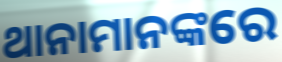
ଥାନାମାନଙ୍କରେ